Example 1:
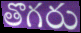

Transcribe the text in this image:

తొగరు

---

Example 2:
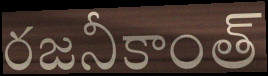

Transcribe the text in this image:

రజనీకాంత్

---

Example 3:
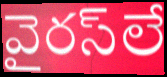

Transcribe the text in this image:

వైరస్‌లే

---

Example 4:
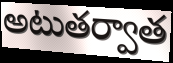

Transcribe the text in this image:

అటుతర్వాత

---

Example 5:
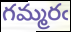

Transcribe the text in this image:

గమ్మరఁ